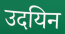
उदयिन